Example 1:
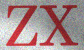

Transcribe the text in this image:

ZX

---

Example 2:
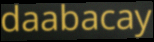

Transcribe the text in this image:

daabacay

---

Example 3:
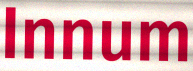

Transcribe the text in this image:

Innum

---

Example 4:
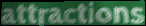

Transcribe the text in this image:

attractions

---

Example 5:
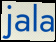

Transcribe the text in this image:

jala